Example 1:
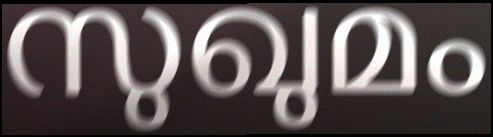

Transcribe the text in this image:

സുഖുമം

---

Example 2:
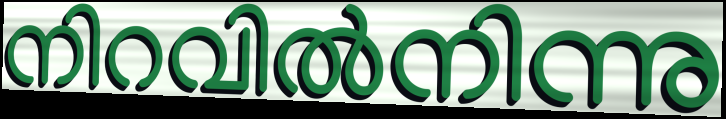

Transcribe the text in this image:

നിറവിൽനിന്നു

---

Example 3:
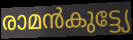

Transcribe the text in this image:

രാമൻകുട്ട്യേ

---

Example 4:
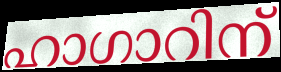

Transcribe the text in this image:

ഹാഗാറിന്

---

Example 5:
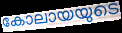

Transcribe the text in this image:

കോലായയുടെ